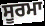
ਸੂਰਮਾ